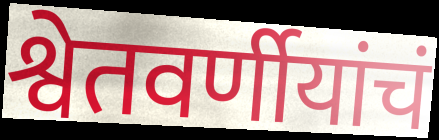
श्वेतवर्णीयांचं